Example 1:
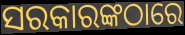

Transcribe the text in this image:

ସରକାରଙ୍କଠାରେ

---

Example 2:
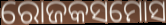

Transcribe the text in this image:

ରୋଜକସମୋସ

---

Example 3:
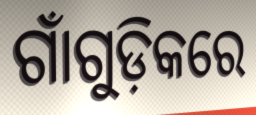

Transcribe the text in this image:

ଗାଁଗୁଡ଼ିକରେ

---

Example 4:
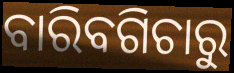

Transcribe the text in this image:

ବାରିବଗିଚାରୁ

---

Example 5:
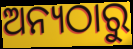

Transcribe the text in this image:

ଅନ୍ୟଠାରୁ